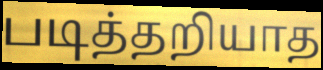
படித்தறியாத